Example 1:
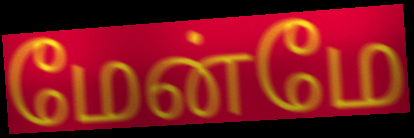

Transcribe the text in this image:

மேன்மே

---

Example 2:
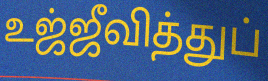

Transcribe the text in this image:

உஜ்ஜீவித்துப்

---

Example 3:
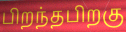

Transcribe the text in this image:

பிறந்தபிறகு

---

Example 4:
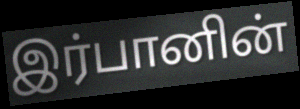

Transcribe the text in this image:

இர்பானின்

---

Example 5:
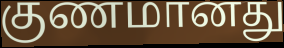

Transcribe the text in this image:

குணமானது